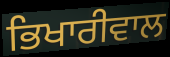
ਭਿਖਾਰੀਵਾਲ